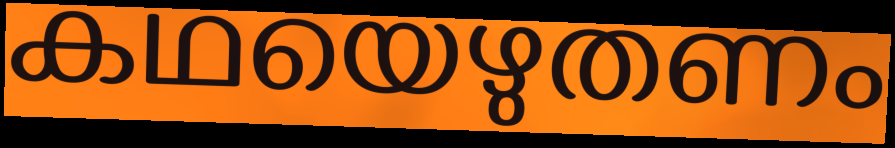
കഥയെഴുതണം